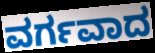
ವರ್ಗವಾದ